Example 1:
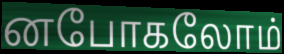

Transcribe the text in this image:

னபோகலோம்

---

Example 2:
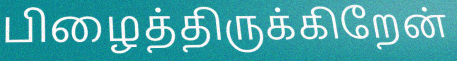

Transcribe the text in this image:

பிழைத்திருக்கிறேன்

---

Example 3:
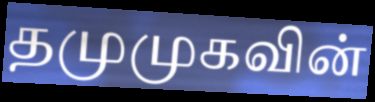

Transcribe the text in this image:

தமுமுகவின்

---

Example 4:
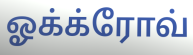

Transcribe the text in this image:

ஓக்க்ரோவ்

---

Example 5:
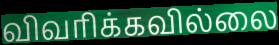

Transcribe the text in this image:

விவரிக்கவில்லை